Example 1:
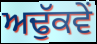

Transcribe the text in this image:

ਅਢੁੱਕਵੇਂ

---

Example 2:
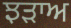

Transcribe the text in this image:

ਝੜਾਅ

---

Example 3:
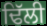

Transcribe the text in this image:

ਢਿੱਲੀ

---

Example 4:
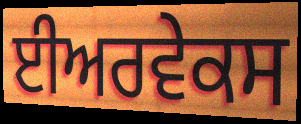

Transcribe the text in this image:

ਈਅਰਵੇਕਸ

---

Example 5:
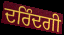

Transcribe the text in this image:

ਦਰਿੰਦਗੀ